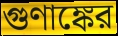
গুণাঙ্কের